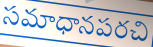
సమాధానపరచి